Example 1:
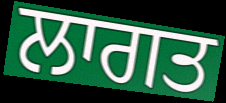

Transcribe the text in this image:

ਲਾਗਤ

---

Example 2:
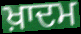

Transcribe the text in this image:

ਖ਼ਾਦਮ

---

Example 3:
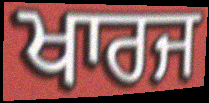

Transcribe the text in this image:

ਖਾਰਜ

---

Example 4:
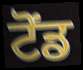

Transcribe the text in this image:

ਟੋਂਡ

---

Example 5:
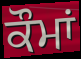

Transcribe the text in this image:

ਕੌਮਾਂ